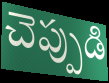
చెప్పుడి